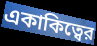
একাকিত্বের